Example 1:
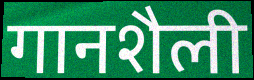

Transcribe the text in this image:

गानशैली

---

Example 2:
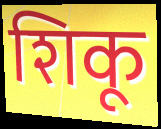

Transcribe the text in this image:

शिकू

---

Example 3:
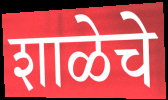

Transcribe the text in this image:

शाळेचे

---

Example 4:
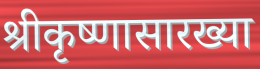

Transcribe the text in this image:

श्रीकृष्णासारख्या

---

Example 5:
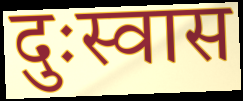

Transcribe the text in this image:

दुःस्वास